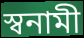
স্বনামী